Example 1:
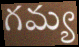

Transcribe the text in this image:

గమ్య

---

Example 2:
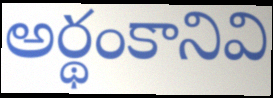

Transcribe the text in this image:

అర్థంకానివి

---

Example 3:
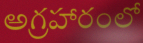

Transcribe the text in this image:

అగ్రహారంలో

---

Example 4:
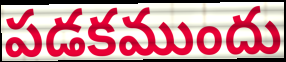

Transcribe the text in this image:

పడకముందు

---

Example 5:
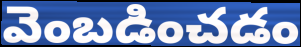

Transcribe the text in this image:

వెంబడించడం